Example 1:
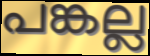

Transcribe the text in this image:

പങ്കല്ല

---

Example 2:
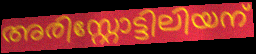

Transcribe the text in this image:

അരിസ്റ്റോട്ടിലിയന്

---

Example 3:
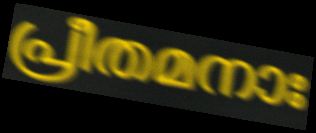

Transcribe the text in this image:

പ്രീതമനാഃ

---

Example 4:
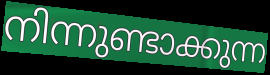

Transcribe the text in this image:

നിന്നുണ്ടാക്കുന്ന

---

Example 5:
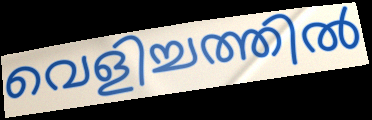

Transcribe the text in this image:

വെളിച്ചത്തിൽ